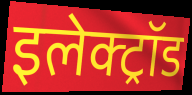
इलेक्ट्रॉड